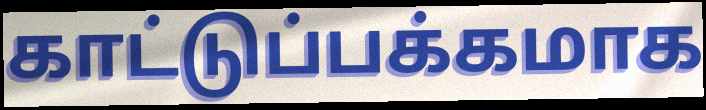
காட்டுப்பக்கமாக